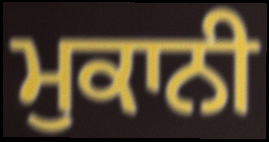
ਮੁਕਾਨੀ